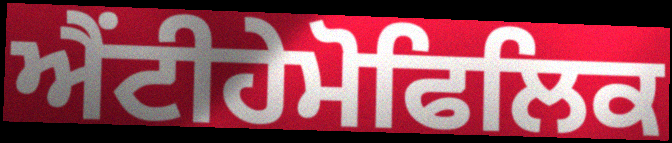
ਐਂਟੀਹੇਮੋਫਿਲਿਕ